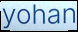
yohan